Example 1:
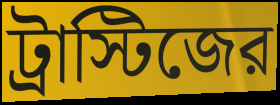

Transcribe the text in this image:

ট্রাস্টিজের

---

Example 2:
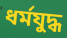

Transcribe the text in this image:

ধর্মযুদ্ধ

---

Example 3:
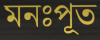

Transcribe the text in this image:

মনঃপূত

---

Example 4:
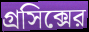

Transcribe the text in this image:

গ্রসিক্সের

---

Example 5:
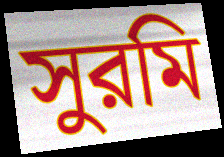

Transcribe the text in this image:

সুরমি